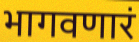
भागवणारं